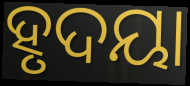
ହୃଦୟା